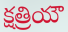
క్షత్రియౌ